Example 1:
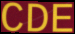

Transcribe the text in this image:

CDE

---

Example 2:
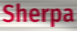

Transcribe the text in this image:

Sherpa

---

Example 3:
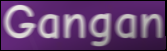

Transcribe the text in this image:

Gangan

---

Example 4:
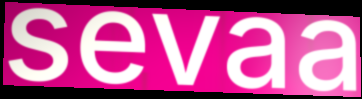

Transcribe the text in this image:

sevaa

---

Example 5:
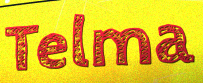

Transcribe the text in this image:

Telma